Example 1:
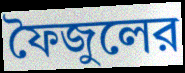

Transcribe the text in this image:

ফৈজুলের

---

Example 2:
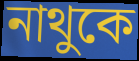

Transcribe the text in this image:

নাথুকে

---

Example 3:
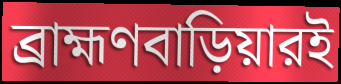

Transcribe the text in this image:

ব্রাহ্মণবাড়িয়ারই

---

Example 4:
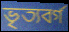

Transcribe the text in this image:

ভৃত্যবর্গ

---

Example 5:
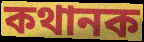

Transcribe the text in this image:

কথানক